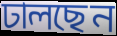
ঢালছেন